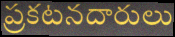
ప్రకటనదారులు